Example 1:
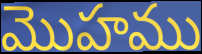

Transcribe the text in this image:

మొహము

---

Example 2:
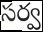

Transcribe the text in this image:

సర్వ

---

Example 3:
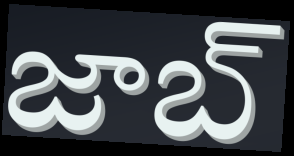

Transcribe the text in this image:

జాబ్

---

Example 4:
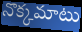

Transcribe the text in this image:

నొక్కమాటు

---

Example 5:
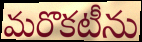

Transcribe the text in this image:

మరొకటీను